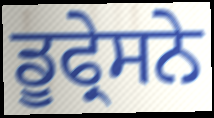
ਡੂਫ੍ਰੇਸਨੇ